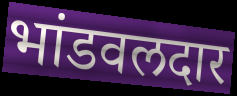
भांडवलदार